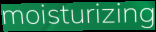
moisturizing